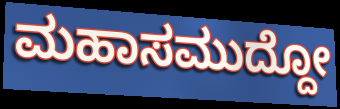
ಮಹಾಸಮುದ್ದೋ